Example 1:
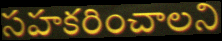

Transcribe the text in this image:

సహకరించాలని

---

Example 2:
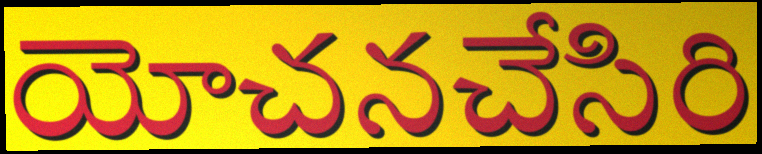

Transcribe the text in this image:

యోచనచేసిరి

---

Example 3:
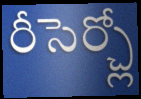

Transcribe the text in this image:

రీసెర్చ్లో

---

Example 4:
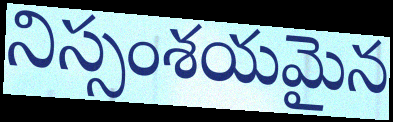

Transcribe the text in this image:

నిస్సంశయమైన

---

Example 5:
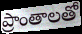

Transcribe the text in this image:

ప్రాంతాలతో